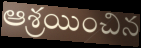
ఆశ్రయించిన